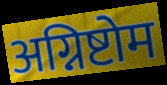
अग्निष्टोम